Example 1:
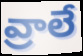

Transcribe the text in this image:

వ్రాలే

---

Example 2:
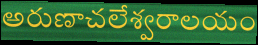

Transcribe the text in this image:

అరుణాచలేశ్వరాలయం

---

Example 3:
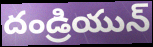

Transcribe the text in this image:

దండ్రియున్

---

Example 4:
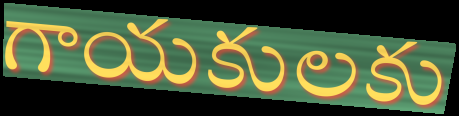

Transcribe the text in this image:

గాయకులకు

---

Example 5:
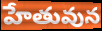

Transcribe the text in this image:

హేతువున